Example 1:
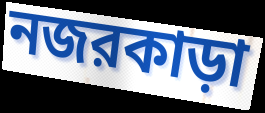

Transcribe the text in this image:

নজরকাড়া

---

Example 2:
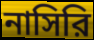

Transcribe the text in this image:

নাসিরি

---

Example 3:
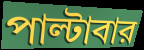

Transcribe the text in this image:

পাল্টাবার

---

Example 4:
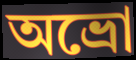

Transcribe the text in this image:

অভ্রো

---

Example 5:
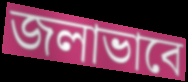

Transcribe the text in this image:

জলাভাবে